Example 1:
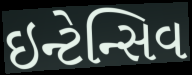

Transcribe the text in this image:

ઇન્ટેન્સિવ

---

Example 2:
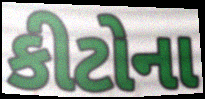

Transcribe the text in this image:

કીટોના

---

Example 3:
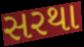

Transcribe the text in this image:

સરથા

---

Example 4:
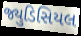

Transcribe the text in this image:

જ્યુડિસિયલ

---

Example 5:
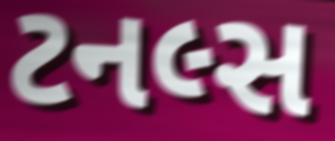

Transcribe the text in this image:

ટનલ્સ